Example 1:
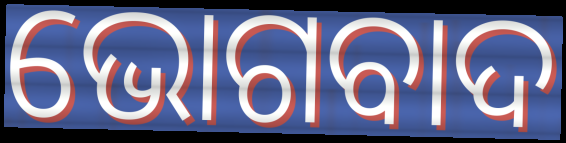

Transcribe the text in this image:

ଭୋଗବାଦ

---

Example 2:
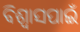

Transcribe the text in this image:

ବିଶ୍ୱାସପାଇଁ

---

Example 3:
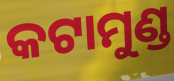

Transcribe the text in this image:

କଟାମୁଣ୍ଡ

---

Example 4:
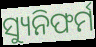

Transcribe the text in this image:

ସ୍ୟୁନିଫର୍ମ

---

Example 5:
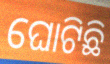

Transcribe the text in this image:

ଘୋଟିଛି